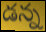
డన్న